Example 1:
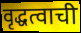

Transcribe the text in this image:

वृद्धत्वाची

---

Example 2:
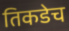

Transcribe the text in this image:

तिकडेच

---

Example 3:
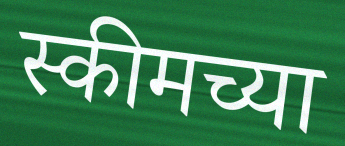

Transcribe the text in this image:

स्कीमच्या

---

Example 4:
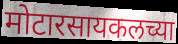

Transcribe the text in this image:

मोटारसायकलच्या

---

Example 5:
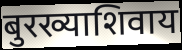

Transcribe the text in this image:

बुरख्याशिवाय